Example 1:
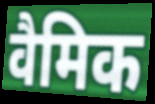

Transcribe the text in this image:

वैमिक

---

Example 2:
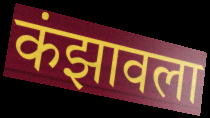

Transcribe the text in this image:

कंझावला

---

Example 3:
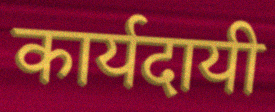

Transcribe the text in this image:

कार्यदायी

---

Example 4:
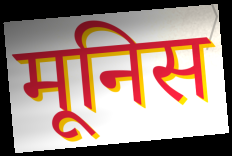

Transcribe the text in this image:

मूनिस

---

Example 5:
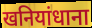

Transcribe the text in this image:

खनियांधाना